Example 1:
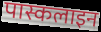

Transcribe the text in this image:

पास्कलाइन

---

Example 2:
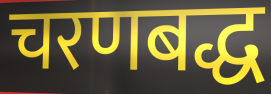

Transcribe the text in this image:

चरणबद्ध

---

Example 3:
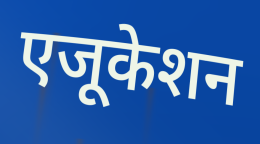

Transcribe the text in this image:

एजूकेशन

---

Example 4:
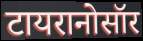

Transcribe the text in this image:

टायरानोसॉर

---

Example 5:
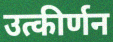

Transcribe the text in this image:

उत्कीर्णन